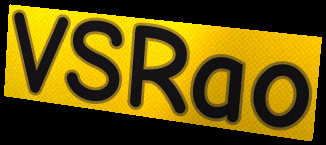
VSRao